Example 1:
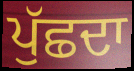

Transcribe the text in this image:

ਪੁੱਛਦਾ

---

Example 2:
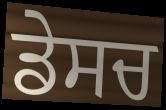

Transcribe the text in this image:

ਡੇਸਚ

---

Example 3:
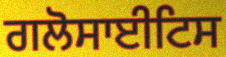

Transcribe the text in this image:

ਗਲੋਸਾਈਟਿਸ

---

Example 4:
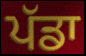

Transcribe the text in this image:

ਪੱਡਾ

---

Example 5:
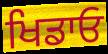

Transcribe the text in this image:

ਖਿਡਾਓ